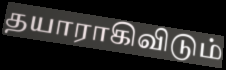
தயாராகிவிடும்